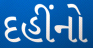
દહીંનો